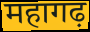
महागढ़